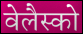
वेलैस्को